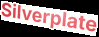
Silverplate